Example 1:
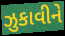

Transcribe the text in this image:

ઝુકાવીને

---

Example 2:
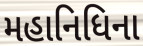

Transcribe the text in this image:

મહાનિધિના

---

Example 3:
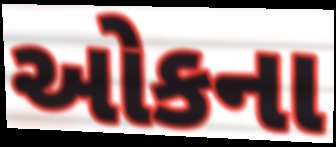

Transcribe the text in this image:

ઓકના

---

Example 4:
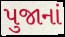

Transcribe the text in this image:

પુજાનાં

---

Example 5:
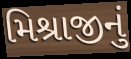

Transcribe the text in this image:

મિશ્રાજીનું